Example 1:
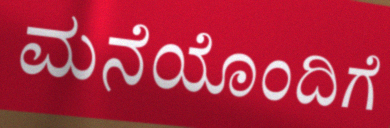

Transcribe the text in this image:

ಮನೆಯೊಂದಿಗೆ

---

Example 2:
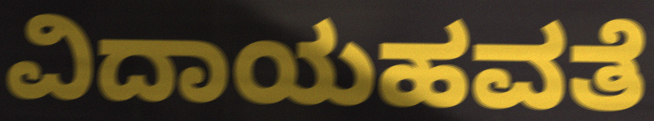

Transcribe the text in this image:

ವಿದಾಯಹವತೆ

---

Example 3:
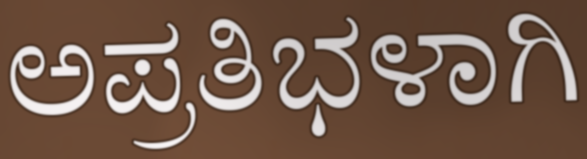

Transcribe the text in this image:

ಅಪ್ರತಿಭಳಾಗಿ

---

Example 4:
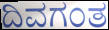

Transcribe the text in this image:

ದಿವಗಂತ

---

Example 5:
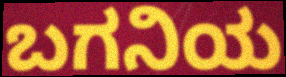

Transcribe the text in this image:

ಬಗನಿಯ